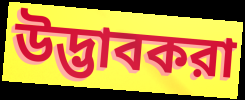
উদ্ভাবকরা